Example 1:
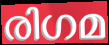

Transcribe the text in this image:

രിഗമ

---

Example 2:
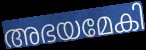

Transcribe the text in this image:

അഭയമേകി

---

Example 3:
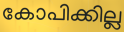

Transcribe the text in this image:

കോപിക്കില്ല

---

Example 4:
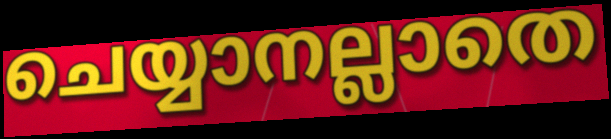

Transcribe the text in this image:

ചെയ്യാനല്ലാതെ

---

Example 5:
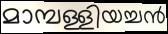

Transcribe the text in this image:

മാമ്പള്ളിയച്ചൻ